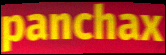
panchax